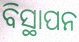
ବିସ୍ଥାପନ